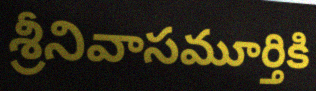
శ్రీనివాసమూర్తికి